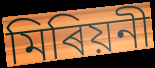
মিৰিয়নী